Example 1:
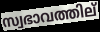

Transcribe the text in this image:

സ്വഭാവത്തില്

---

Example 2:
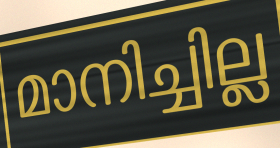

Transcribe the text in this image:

മാനിച്ചില്ല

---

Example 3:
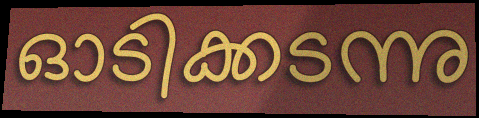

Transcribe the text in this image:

ഓടിക്കടന്നു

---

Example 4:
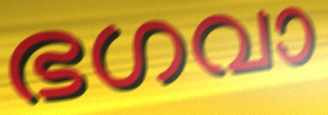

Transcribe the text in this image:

ഭഗവാ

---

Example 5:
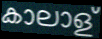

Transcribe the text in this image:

കാലാള്